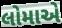
લોમાએ